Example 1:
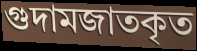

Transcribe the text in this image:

গুদামজাতকৃত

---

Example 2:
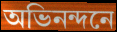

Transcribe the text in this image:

অভিনন্দনে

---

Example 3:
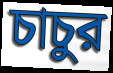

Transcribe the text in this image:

চাচুর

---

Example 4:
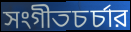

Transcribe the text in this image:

সংগীতচর্চার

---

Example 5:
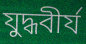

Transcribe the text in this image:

যুদ্ধবীর্য